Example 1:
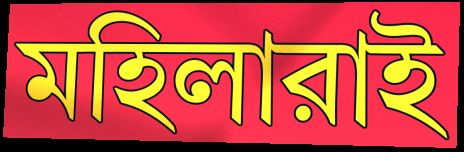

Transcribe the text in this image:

মহিলারাই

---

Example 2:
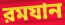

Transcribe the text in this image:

রমযান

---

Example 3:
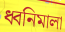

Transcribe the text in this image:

ধ্বনিমালা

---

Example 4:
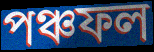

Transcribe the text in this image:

পঞ্চফল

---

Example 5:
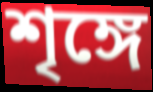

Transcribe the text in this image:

শৃঙ্গে